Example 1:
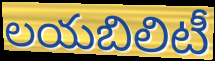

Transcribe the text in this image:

లయబిలిటీ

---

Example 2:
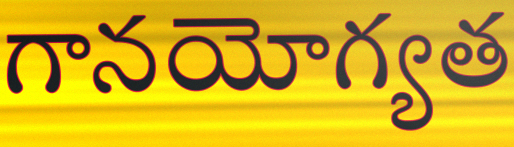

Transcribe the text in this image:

గానయోగ్యత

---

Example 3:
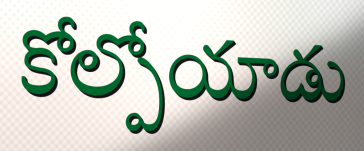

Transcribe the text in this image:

కోల్పోయాడు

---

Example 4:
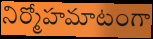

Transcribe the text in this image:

నిర్మోహమాటంగా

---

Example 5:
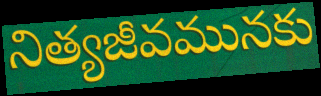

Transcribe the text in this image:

నిత్యజీవమునకు